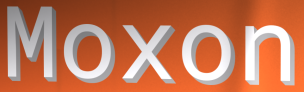
Moxon